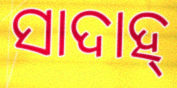
ସାଦାହ୍